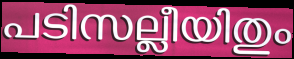
പടിസല്ലീയിതും